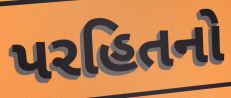
પરહિતનો